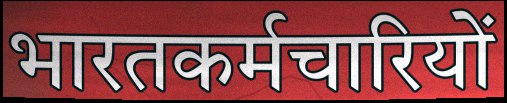
भारतकर्मचारियों